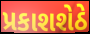
પ્રકાશશેઠે